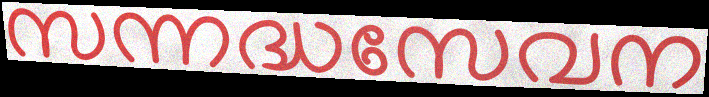
സന്നദ്ധസേവന